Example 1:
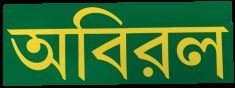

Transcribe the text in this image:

অবিরল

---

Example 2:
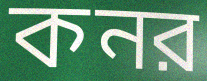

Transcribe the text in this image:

কনর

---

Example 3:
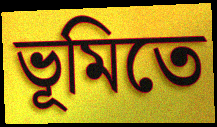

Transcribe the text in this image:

ভূমিতে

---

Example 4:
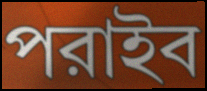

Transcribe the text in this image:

পরাইব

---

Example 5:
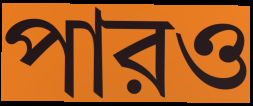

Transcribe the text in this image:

পারও